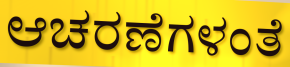
ಆಚರಣೆಗಳಂತೆ